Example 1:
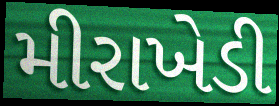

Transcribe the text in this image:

મીરાખેડી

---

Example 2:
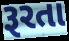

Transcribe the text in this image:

રૂરતા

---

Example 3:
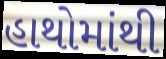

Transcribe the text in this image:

હાથોમાંથી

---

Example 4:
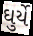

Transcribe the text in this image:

ઘુર્યે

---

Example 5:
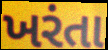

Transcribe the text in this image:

ખરંતા